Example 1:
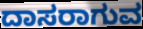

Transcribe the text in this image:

ದಾಸರಾಗುವ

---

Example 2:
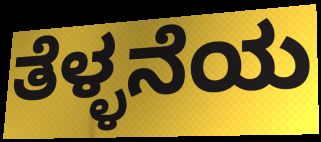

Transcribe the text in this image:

ತೆಳ್ಳನೆಯ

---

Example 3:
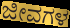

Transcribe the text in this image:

ಜೀವಗಳ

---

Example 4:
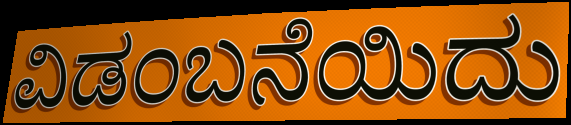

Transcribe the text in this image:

ವಿಡಂಬನೆಯಿದು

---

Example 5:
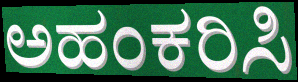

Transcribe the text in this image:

ಅಹಂಕರಿಸಿ